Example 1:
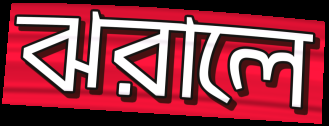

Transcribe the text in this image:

ঝরালে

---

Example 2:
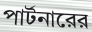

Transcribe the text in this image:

পার্টনারের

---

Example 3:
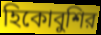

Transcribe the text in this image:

হিকোবুশির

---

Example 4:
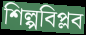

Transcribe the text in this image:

শিল্পবিপ্লব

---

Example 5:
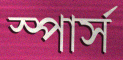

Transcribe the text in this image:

স্পার্স